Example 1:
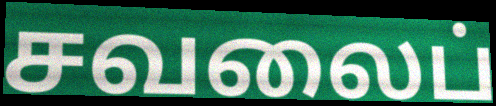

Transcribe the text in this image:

சவலைப்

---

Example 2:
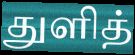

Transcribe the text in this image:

துளித்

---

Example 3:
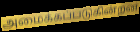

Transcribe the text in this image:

அமைக்கப்படுகின்றன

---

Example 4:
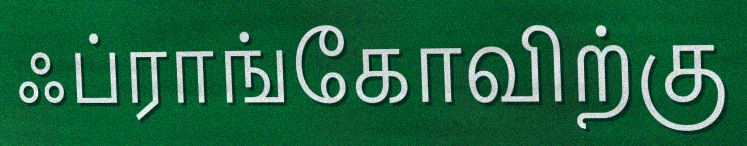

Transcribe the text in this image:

ஃப்ராங்கோவிற்கு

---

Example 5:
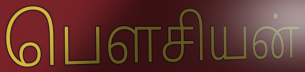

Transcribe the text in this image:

பௌசியன்